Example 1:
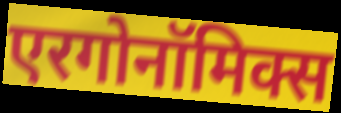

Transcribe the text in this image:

एरगोनॉमिक्स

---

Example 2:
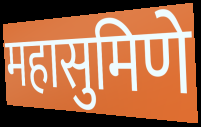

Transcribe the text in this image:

महासुमिणे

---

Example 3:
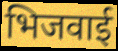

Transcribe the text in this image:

भिजवाई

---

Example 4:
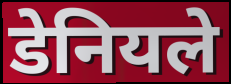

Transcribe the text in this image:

डेनियले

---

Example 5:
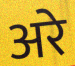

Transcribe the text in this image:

अरे